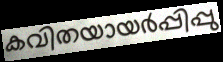
കവിതയായർപ്പിപ്പു